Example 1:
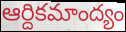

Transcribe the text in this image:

ఆర్దికమాంద్యం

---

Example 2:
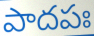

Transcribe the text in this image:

పాదపః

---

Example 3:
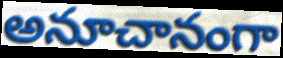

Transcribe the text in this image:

అనూచానంగా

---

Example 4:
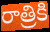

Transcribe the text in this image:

రాత్రికి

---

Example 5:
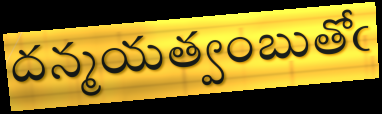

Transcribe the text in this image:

దన్మయత్వంబుతోఁ